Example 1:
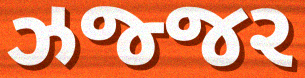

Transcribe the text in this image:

ઝજ્જર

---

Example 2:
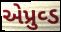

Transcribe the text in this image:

એપ્રુવ્ડ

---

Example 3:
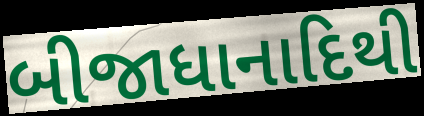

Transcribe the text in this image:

બીજાધાનાદિથી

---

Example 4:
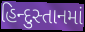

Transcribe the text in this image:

હિન્દુસ્તાનમાં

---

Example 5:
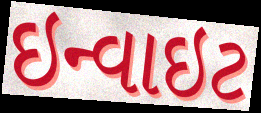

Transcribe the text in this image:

ઇન્વાઇટ